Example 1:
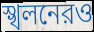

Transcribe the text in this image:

স্খলনেরও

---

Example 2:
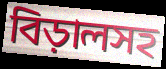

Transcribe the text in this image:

বিড়ালসহ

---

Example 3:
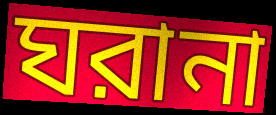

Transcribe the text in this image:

ঘরানা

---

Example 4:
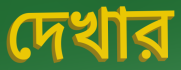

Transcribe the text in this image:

দেখার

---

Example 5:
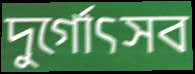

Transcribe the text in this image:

দুর্গোৎসব